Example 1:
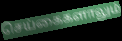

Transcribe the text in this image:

செய்கைகளாலும்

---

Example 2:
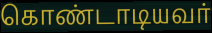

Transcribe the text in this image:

கொண்டாடியவர்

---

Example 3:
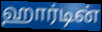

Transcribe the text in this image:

ஹார்டின்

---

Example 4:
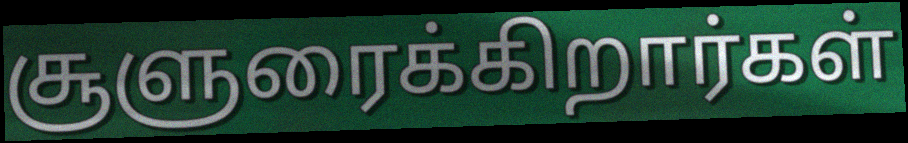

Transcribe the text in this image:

சூளுரைக்கிறார்கள்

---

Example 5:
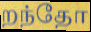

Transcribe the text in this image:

றந்தோ